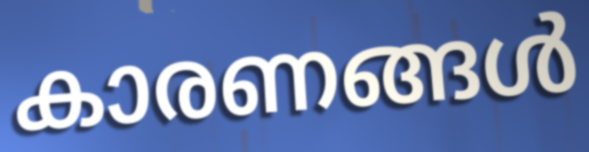
കാരണങ്ങൾ